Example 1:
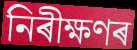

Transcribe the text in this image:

নিৰীক্ষণৰ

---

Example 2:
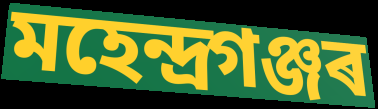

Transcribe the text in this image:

মহেন্দ্ৰগঞ্জৰ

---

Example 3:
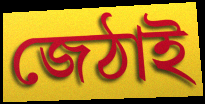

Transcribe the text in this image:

জেঠাই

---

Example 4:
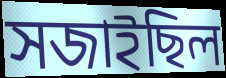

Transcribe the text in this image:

সজাইছিল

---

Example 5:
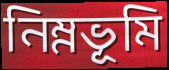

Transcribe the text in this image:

নিম্নভূমি